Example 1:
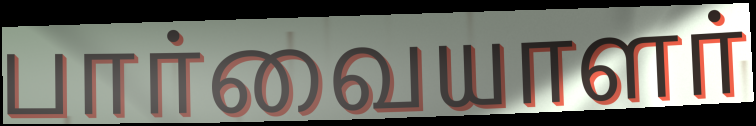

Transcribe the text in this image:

பார்வையாளர்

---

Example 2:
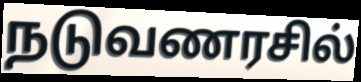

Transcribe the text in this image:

நடுவணரசில்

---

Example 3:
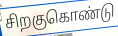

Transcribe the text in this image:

சிறகுகொண்டு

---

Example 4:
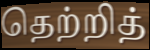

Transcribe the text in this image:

தெற்றித்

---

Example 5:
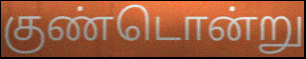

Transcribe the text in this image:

குண்டொன்று